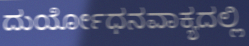
ದುರ್ಯೋಧನವಾಕ್ಯದಲ್ಲಿ